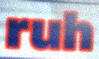
ruh